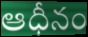
ఆధీనం